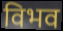
विभव